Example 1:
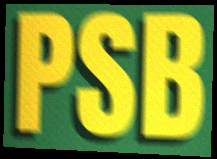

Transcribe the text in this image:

PSB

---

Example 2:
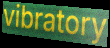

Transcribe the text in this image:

vibratory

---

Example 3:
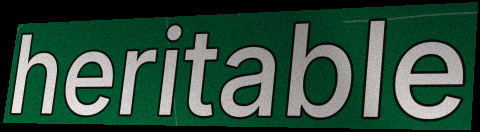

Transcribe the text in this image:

heritable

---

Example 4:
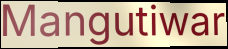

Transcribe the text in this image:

Mangutiwar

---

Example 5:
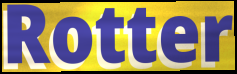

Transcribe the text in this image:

Rotter